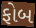
ફોબ